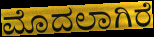
ಮೊದಲಾಗಿರೆ